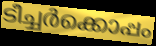
ടീച്ചർക്കൊപ്പം